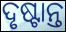
ଦୃଷ୍ଟାନ୍ତ